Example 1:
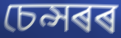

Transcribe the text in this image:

চেন্সৰৰ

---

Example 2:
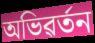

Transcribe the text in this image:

অভিৱৰ্তন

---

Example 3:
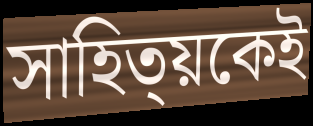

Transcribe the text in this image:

সাহিত্য়কেই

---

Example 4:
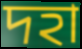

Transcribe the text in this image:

দহা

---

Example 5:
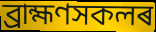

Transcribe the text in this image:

ব্ৰাহ্মণসকলৰ